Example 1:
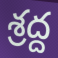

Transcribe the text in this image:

శ్రద్ద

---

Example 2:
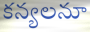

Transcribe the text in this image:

కన్యలనూ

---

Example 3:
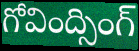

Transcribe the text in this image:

గోవింద్సింగ్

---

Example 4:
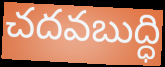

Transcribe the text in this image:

చదవబుద్ధి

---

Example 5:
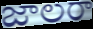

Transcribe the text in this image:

జాలరా